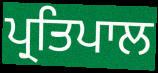
ਪ੍ਰਤਿਪਾਲ